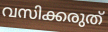
വസിക്കരുത്